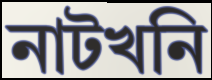
নাটখনি